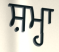
ਸ਼ਮ੍ਹਾ